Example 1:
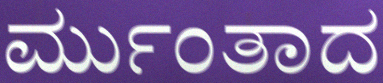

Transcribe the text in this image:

ರ್ಮುಂತಾದ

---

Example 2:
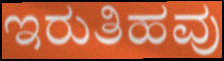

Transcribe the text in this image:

ಇರುತಿಹವು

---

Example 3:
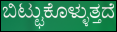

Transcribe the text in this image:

ಬಿಟ್ಟುಕೊಳ್ಳುತ್ತದೆ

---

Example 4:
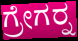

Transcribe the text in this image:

ಗ್ರೇಗರ್‍ನ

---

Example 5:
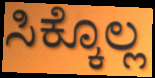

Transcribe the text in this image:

ಸಿಕ್ಕೊಲ್ಲ